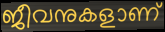
ജീവനുകളാണ്